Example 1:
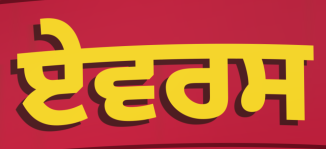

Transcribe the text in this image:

ਏਵਰਸ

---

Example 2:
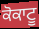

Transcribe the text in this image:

ਕੋਕਾਟੂ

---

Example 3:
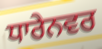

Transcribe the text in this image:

ਧਾਰੇਨਵਰ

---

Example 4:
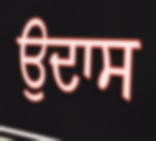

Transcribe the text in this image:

ਉਦਾਸ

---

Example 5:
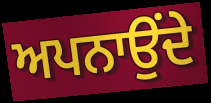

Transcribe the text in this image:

ਅਪਨਾਉਂਦੇ